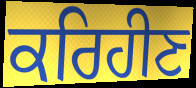
ਕਰਿਹੀਣ